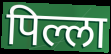
पिल्ला